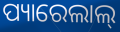
ପ୍ୟାରେଲାଲ୍